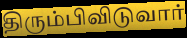
திரும்பிவிடுவார்